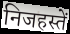
निजहस्तें